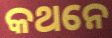
କଥନେ